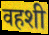
वहशी